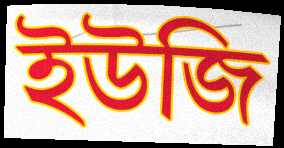
ইউজি